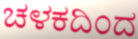
ಚಳಕದಿಂದ